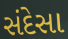
સંદેસા